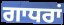
ਗਾਧਰਾਂ